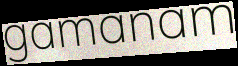
gamanam